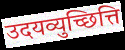
उदयव्युच्छित्ति